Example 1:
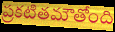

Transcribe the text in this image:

ప్రకటితమౌతోంది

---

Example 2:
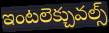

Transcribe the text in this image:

ఇంటలెక్చువల్స్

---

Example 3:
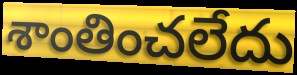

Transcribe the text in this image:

శాంతించలేదు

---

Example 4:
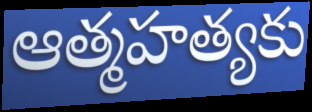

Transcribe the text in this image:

ఆత్మహత్యకు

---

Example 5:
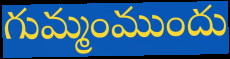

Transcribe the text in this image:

గుమ్మంముందు